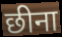
छीना